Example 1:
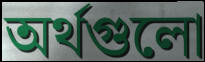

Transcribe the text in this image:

অর্থগুলো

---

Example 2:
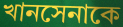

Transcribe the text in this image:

খানসেনাকে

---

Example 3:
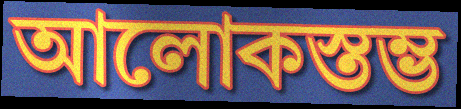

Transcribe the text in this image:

আলোকস্তম্ভ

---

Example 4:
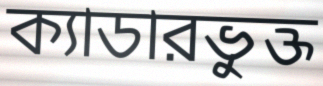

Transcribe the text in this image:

ক্যাডারভুক্ত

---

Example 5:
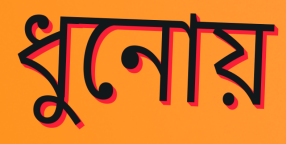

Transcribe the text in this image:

ধুনোয়